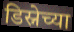
डिस्नेच्या